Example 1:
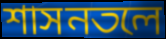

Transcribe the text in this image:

শাসনতলে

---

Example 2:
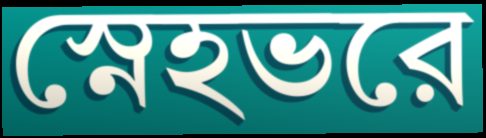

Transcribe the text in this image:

স্নেহভরে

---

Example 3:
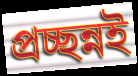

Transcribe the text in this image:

প্রচ্ছন্নই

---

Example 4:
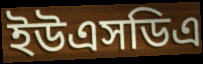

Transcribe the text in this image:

ইউএসডিএ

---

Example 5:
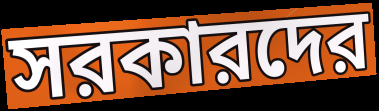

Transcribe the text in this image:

সরকারদের